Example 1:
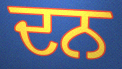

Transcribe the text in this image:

ਦਨ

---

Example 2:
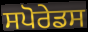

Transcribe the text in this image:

ਸਪੋਰੇਡਸ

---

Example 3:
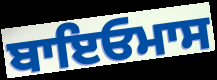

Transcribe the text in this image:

ਬਾਇਓਮਾਸ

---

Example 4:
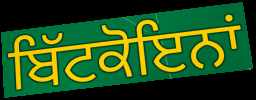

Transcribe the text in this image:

ਬਿੱਟਕੋਇਨਾਂ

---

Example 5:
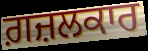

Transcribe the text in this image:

ਗ਼ਜ਼ਲਕਾਰ